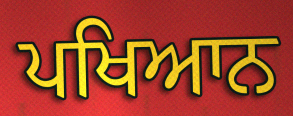
ਪਖਿਆਨ